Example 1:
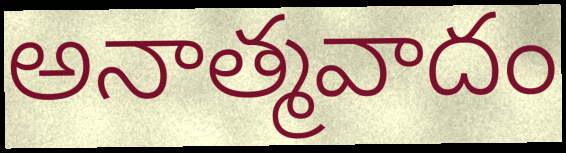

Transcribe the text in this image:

అనాత్మవాదం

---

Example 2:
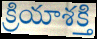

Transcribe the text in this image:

క్రియాశక్తి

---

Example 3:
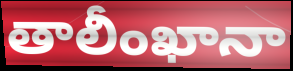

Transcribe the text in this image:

తాలీంఖానా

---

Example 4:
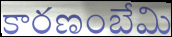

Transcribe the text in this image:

కారణంబేమి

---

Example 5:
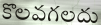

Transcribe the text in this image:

కొలవగలదు